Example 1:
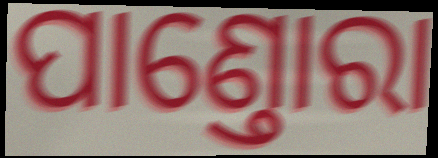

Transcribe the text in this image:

ପାଣ୍ତୋରା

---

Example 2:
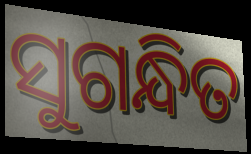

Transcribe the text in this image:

ସୁଗନ୍ଧିତ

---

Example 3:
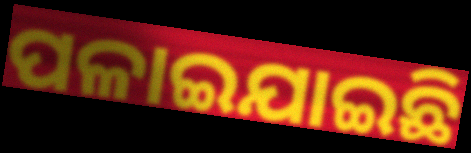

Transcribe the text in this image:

ପଳାଇଯାଇଛି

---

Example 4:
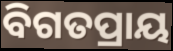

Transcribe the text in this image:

ବିଗତପ୍ରାୟ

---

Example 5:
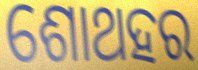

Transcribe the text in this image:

ଶୋଥହର